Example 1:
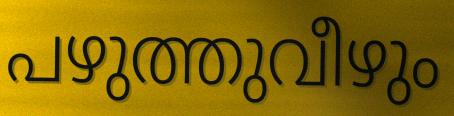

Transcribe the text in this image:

പഴുത്തുവീഴും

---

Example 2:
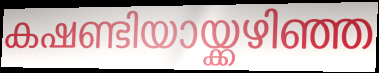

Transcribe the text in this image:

കഷണ്ടിയായ്ക്കഴിഞ്ഞ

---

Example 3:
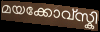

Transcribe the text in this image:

മയക്കോവ്സ്കി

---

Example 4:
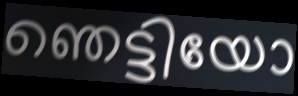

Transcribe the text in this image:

ഞെട്ടിയോ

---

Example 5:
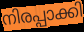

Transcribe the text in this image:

നിരപ്പാക്കി